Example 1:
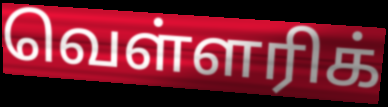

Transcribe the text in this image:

வெள்ளரிக்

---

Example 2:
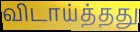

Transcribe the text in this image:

விடாய்த்தது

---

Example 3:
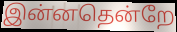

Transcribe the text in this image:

இன்னதென்றே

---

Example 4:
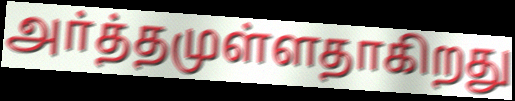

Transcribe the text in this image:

அர்த்தமுள்ளதாகிறது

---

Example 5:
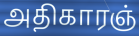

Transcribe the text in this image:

அதிகாரஞ்